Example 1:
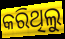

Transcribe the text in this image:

କରିଥିଲୁ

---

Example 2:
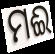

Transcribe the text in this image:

ମଈ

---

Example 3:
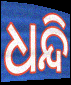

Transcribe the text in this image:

ଧନ୍ଦି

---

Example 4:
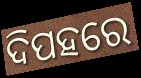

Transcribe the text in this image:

ଦିପହରେ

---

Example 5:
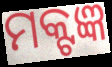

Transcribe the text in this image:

ମକ୍ଟଜ୍ଞ